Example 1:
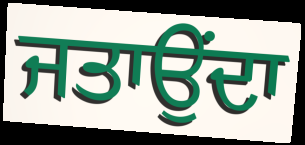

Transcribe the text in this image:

ਜਤਾਉਂਦਾ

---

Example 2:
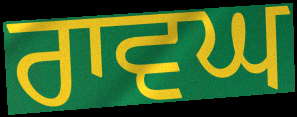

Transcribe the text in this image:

ਰਾਵਘ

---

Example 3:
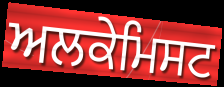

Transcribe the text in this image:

ਅਲਕੇਮਿਸਟ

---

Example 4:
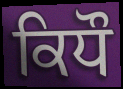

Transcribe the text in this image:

ਕਿਧੌ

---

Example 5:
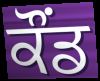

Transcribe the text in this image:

ਕੌਂਡ